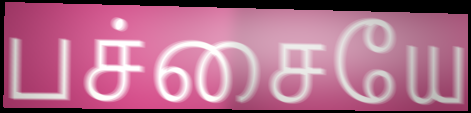
பச்சையே